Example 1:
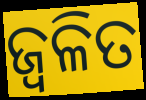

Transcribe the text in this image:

ଜ୍ୱଳିତ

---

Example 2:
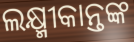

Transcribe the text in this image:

ଲକ୍ଷ୍ମୀକାନ୍ତଙ୍କ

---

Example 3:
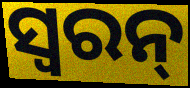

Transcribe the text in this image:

ସ୍ୱରନ୍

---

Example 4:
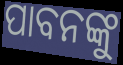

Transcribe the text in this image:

ପାବନଙ୍କୁ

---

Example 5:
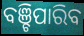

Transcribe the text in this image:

ବଞ୍ଚିପାରିବ